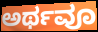
ಅರ್ಥವೂ